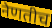
नेणतीच